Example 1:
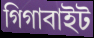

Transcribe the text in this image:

গিগাবাইট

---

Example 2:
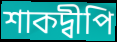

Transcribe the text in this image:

শাকদ্বীপি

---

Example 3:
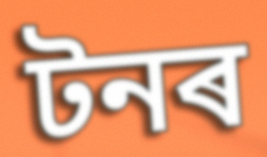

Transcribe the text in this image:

টনৰ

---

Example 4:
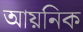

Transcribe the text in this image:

আয়নিক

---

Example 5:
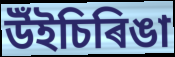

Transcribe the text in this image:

উঁইচিৰিঙা